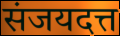
संजयदत्त